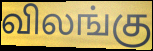
விலங்கு